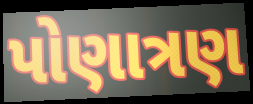
પોણાત્રણ